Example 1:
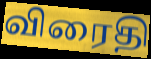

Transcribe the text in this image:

விரைதி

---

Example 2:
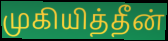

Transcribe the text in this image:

முகியித்தீன்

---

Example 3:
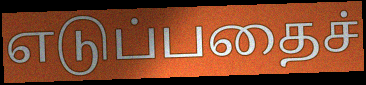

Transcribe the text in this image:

எடுப்பதைச்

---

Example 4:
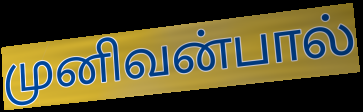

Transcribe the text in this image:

முனிவன்பால்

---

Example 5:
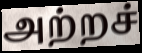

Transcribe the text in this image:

அற்றச்